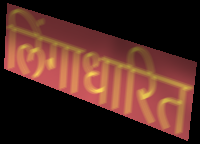
लिंगाधारित